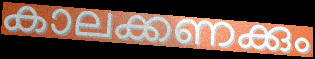
കാലക്കണക്കും